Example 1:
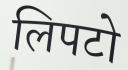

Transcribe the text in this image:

लिपटो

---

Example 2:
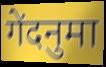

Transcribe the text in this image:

गेंदनुमा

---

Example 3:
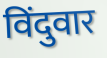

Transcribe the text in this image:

विंदुवार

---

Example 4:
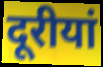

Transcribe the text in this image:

दूरीयां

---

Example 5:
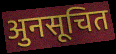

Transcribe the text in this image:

अुनसूचित